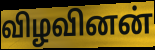
விழவினன்